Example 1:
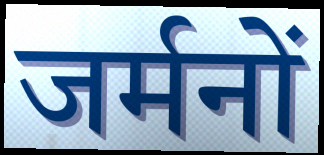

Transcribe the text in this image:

जर्मनों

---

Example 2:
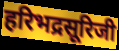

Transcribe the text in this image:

हरिभद्रसूरिजी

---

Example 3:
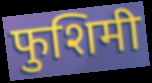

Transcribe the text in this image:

फुशिमी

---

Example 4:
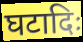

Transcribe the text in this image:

घटादिः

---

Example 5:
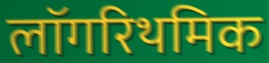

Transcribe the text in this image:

लॉगरिथमिक